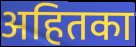
अहितका